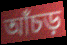
আঁচড়